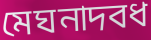
মেঘনাদবধ